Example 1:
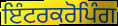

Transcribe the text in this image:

ਇੰਟਰਕਰੋਪਿੰਗ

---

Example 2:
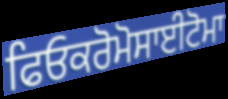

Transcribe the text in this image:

ਫਿਓਕਰੋਮੋਸਾਈਟੋਮਾ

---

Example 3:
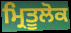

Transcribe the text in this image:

ਮ੍ਰਿਤੂਲੋਕ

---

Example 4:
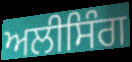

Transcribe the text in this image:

ਅਲੀਸਿੰਗ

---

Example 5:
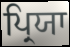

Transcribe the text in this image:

ਪ੍ਰਿਯਾ